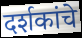
दर्शकांचे